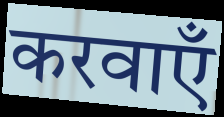
करवाएँ